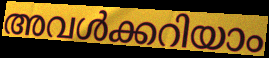
അവൾക്കറിയാം